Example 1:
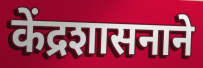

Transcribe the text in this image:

केंद्रशासनाने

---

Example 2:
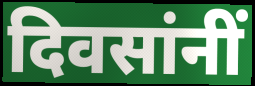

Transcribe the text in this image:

दिवसांनीं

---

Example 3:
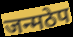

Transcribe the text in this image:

जन्मठेप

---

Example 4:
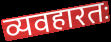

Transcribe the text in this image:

व्यवहारतः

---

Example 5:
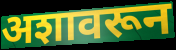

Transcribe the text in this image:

अशावरून